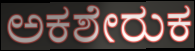
ಅಕಶೇರುಕ